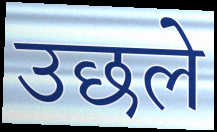
उछले